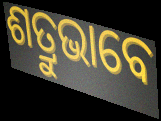
ଶତ୍ରୁଭାବେ